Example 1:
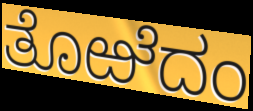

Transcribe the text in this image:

ತೊಱೆದಂ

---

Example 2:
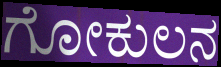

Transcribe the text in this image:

ಗೋಕುಲನ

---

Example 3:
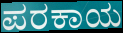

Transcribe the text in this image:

ಪರಕಾಯ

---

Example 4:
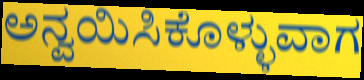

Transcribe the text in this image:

ಅನ್ವಯಿಸಿಕೊಳ್ಳುವಾಗ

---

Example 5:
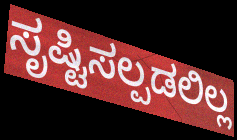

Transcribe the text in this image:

ಸೃಷ್ಟಿಸಲ್ಪಡಲಿಲ್ಲ